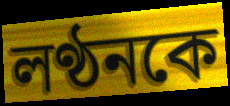
লণ্ঠনকে